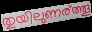
തുയിലുണര്ത്തൂ